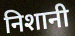
निशानी